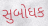
સુબોધક